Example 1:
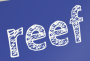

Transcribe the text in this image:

reef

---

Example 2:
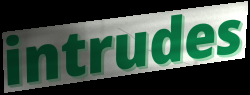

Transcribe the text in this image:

intrudes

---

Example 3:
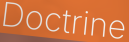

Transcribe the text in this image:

Doctrine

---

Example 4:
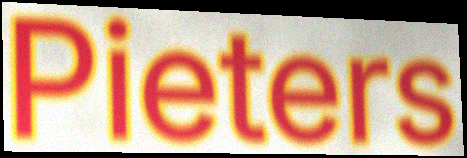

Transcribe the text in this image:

Pieters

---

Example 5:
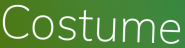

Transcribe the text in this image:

Costume